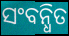
ସଂବନ୍ଧିତ